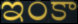
ఇంకా